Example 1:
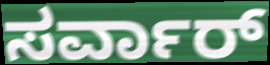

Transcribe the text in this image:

ಸರ್ವಾರ್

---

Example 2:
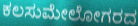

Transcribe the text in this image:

ಕಲಸುಮೇಲೋಗರದ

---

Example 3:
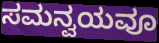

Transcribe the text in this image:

ಸಮನ್ವಯವೂ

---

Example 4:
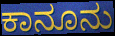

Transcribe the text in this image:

ಕಾನೂನು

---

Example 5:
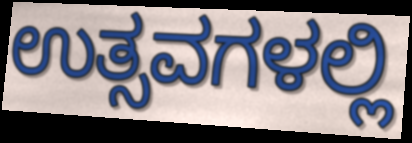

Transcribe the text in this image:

ಉತ್ಸವಗಳಲ್ಲಿ